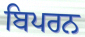
ਬਿਪਰਨ